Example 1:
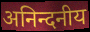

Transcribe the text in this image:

अनिन्दनीय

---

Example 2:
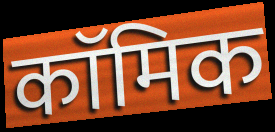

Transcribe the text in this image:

कॉमिक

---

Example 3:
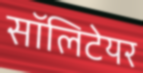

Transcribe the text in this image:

सॉलिटेयर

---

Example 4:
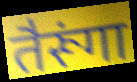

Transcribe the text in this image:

तैरूंगा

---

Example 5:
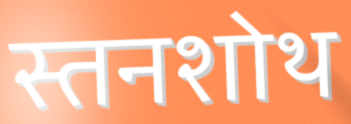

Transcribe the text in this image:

स्तनशोथ